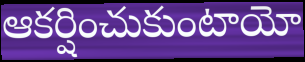
ఆకర్షించుకుంటాయో